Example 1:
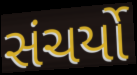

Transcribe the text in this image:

સંચર્યો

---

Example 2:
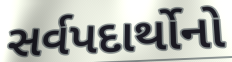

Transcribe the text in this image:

સર્વપદાર્થોનો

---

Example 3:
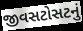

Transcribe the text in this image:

જીવસટોસટનું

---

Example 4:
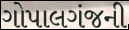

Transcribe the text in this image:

ગોપાલગંજની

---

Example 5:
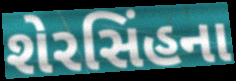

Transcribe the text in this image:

શેરસિંહના